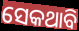
ସେକଥାବି